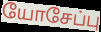
யோசேப்பு